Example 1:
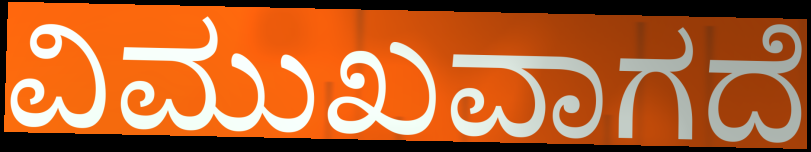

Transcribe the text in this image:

ವಿಮುಖವಾಗದೆ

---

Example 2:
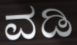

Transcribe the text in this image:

ವಡಿ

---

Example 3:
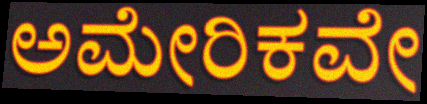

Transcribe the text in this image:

ಅಮೇರಿಕವೇ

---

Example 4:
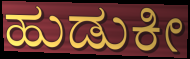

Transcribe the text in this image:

ಹುಡುಕೀ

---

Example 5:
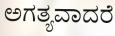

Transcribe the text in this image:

ಅಗತ್ಯವಾದರೆ